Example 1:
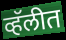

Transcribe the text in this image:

व्हॅलीत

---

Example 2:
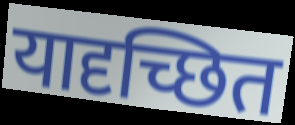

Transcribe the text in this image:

यादृच्छित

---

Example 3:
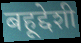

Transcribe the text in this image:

बहूद्देशी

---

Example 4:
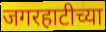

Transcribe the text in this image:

जगरहाटीच्या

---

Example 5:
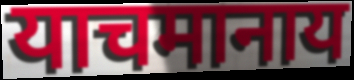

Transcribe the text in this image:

याचमानाय